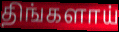
திங்களாய்